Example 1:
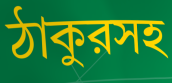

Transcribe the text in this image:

ঠাকুরসহ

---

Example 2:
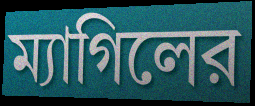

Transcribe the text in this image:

ম্যাগিলের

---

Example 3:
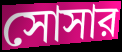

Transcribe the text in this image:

সোসার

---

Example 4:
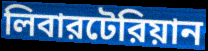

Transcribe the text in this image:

লিবারটেরিয়ান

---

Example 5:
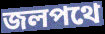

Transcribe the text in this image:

জলপথে